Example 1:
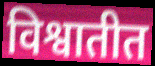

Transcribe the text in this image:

विश्वातीत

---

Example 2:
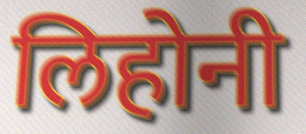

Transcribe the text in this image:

लिहोनी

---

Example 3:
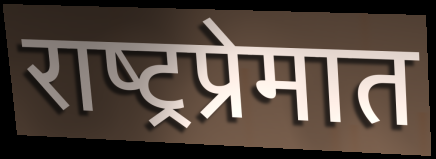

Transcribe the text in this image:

राष्ट्रप्रेमात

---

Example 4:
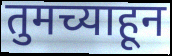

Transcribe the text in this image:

तुमच्याहून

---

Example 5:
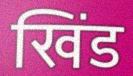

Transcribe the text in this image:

खिंड